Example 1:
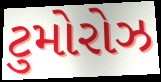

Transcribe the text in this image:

ટુમોરોઝ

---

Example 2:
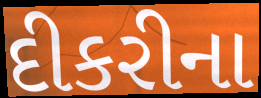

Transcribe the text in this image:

દીકરીના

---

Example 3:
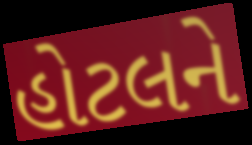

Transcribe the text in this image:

હોટલને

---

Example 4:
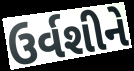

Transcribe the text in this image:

ઉર્વશીને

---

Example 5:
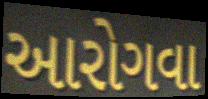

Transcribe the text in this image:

આરોગવા